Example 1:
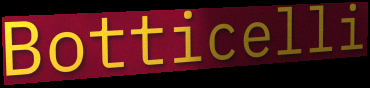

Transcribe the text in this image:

Botticelli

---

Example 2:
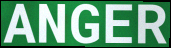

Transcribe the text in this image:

ANGER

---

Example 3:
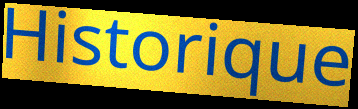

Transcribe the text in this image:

Historique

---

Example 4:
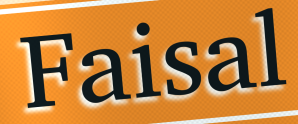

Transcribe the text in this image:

Faisal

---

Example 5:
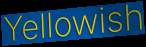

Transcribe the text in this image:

Yellowish